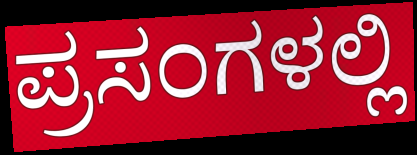
ಪ್ರಸಂಗಳಲ್ಲಿ